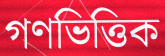
গণভিত্তিক